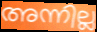
അന്നില്ല